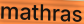
mathras